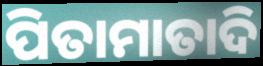
ପିତାମାତାଦି